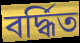
বৰ্দ্ধিত